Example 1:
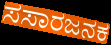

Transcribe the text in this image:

ಸಸಾರಜನಕ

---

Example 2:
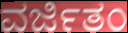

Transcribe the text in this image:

ವರ್ಜಿತಂ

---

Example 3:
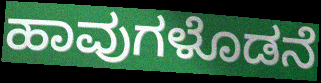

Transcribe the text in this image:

ಹಾವುಗಳೊಡನೆ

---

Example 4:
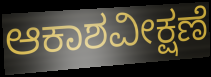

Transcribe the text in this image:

ಆಕಾಶವೀಕ್ಷಣೆ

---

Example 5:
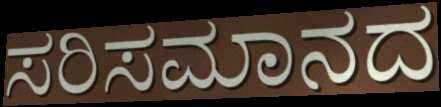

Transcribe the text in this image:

ಸರಿಸಮಾನದ